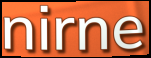
nirne